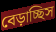
বেড়াচ্ছিস